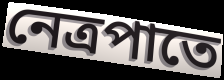
নেত্রপাতে